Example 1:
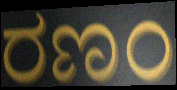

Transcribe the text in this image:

ರಣಂ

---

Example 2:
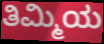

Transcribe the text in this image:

ತಿಮ್ಮಿಯ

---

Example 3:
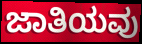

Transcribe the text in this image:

ಜಾತಿಯವು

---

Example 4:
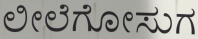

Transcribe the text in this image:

ಲೀಲೆಗೋಸುಗ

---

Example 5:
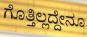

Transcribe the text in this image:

ಗೊತ್ತಿಲ್ಲದ್ದೇನೂ